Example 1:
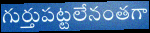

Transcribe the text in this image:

గుర్తుపట్టలేనంతగా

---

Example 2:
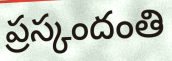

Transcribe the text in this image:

ప్రస్కందంతి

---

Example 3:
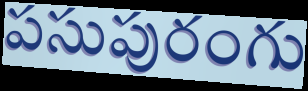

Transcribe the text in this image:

పసుపురంగు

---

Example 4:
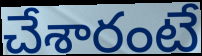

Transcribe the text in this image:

చేశారంటే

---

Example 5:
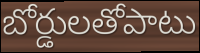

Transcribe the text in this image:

బోర్డులతోపాటు